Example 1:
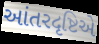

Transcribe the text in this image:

આંતરદૃષ્ટિએ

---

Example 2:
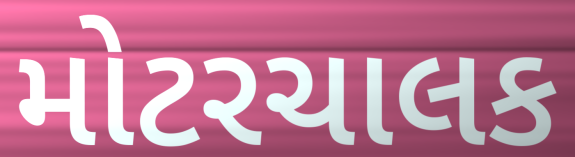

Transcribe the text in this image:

મોટરચાલક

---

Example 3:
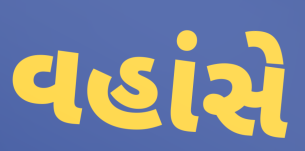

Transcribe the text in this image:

વહાંસે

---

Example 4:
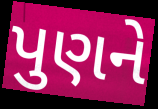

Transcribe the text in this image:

પુણને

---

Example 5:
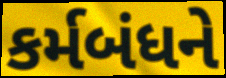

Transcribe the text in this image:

કર્મબંધને